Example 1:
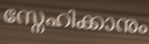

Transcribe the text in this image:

സ്നേഹിക്കാനും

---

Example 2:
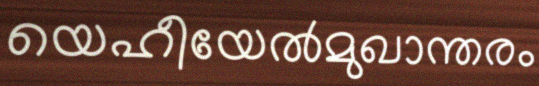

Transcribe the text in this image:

യെഹീയേൽമുഖാന്തരം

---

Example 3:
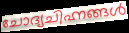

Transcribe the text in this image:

ചോദ്യചിഹ്നങ്ങൾ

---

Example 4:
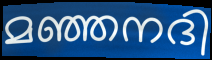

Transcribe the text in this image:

മഞ്ഞനദി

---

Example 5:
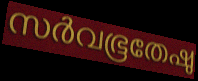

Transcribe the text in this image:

സർവഭൂതേഷു